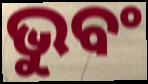
ଭୁବଂ